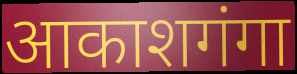
आकाशगंगा